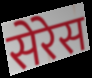
सेरेस